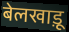
बेलखाड़ू